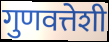
गुणवत्तेशी